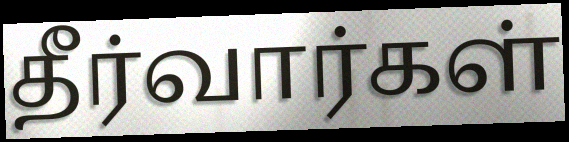
தீர்வார்கள்